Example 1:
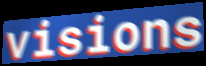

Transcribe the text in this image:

visions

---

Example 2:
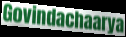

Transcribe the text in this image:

Govindachaarya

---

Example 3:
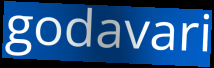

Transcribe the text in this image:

godavari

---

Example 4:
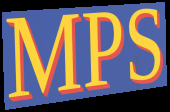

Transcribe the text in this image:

MPS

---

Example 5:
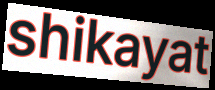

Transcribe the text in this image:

shikayat